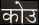
कोउ